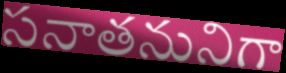
సనాతనునిగా